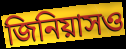
জিনিয়াসও